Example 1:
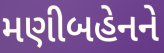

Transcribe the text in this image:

મણીબહેનને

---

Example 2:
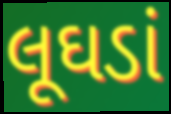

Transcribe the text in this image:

લૂઘડાં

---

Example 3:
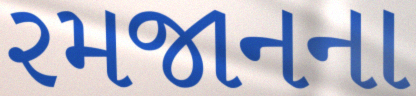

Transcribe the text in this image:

રમજાનના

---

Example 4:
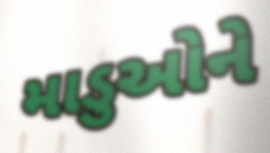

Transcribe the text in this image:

માડુઓને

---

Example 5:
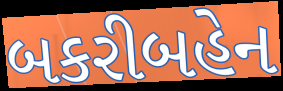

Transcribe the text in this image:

બકરીબહેન